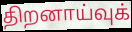
திறனாய்வுக்